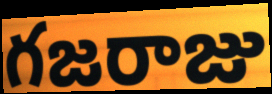
గజరాజు